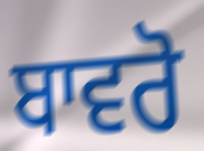
ਬਾਵਰੋ